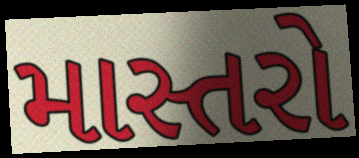
માસ્તરો